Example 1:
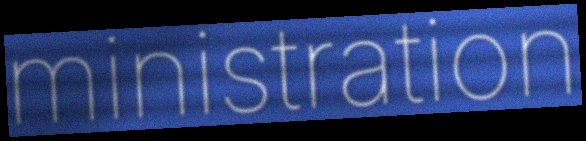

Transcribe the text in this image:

ministration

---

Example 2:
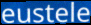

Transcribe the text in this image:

eustele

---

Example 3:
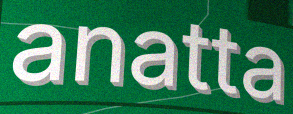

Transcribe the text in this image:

anatta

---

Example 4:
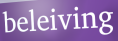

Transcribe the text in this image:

beleiving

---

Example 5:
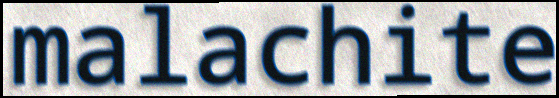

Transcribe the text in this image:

malachite